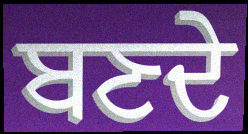
ਬਣਦੇ